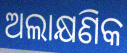
ଅଲାକ୍ଷଣିକ